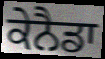
ਕੇਨੈਡਾ